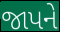
જાપને